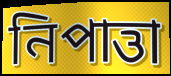
নিপাত্তা